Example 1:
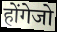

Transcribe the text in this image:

होंगेजो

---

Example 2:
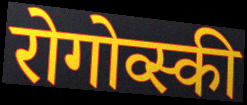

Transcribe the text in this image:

रोगोव्स्की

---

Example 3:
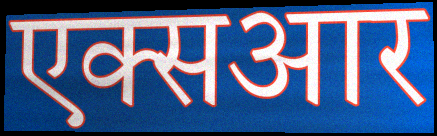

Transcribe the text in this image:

एक्सआर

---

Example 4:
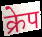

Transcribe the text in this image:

क्रेप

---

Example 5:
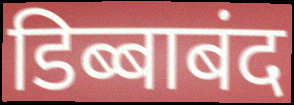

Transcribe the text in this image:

डिब्बाबंद